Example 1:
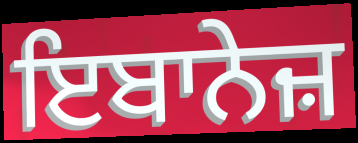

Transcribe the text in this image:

ਇਬਾਨੇਜ਼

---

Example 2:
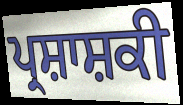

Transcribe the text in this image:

ਪ੍ਰਸ਼ਾਸ਼ਕੀ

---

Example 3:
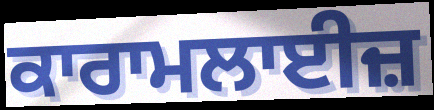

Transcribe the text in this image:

ਕਾਰਾਮਲਾਈਜ਼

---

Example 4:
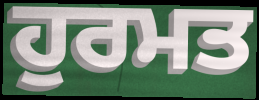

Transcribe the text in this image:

ਹੁਰਮਤ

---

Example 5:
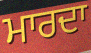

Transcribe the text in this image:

ਮਾਰਦਾ